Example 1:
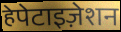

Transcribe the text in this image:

हेपेटाइज़ेशन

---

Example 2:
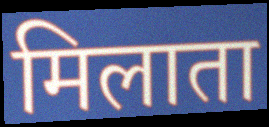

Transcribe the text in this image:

मिलाता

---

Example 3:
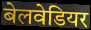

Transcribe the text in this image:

बेलवेडियर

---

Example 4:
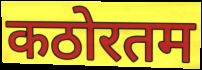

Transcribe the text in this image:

कठोरतम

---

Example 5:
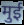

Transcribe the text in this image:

मुई